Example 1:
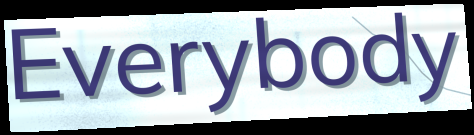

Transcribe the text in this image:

Everybody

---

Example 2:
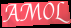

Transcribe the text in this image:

AMOL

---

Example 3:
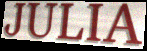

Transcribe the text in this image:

JULIA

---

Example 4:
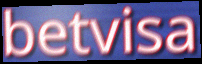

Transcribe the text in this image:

betvisa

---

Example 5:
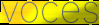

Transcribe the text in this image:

voces